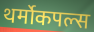
थर्मोकपल्स